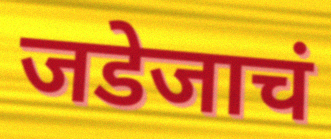
जडेजाचं